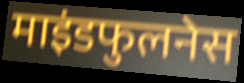
माइंडफुलनेस